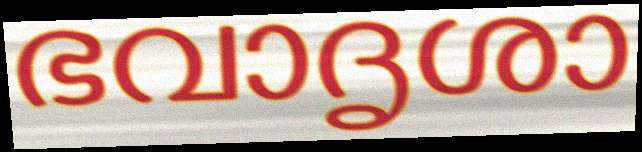
ഭവാദൃശാ